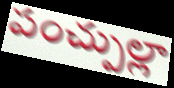
పంచ్పుల్లా